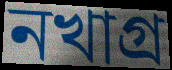
নখাগ্র